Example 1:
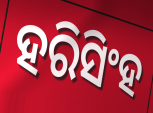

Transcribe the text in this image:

ହରିସିଂହ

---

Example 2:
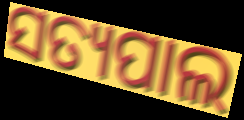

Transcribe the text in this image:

ସତ୍ୟପାଲ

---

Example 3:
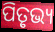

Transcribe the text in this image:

ପିତୃଭ୍ୟ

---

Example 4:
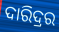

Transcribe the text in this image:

ଦାରିଦ୍ରର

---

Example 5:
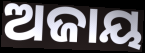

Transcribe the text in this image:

ଅଜାୟ